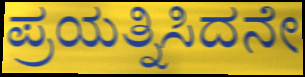
ಪ್ರಯತ್ನಿಸಿದನೇ